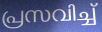
പ്രസവിച്ച്